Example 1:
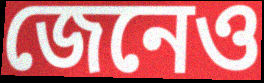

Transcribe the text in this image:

জেনেও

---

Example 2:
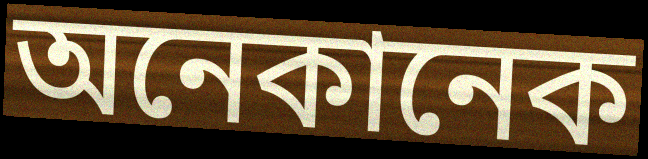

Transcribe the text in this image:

অনেকানেক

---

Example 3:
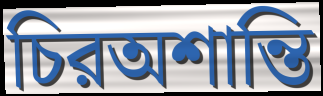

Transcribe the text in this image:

চিরঅশান্তি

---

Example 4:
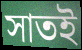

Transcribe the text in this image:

সাতই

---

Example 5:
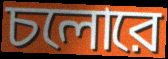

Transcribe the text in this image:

চলোরে